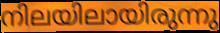
നിലയിലായിരുന്നു